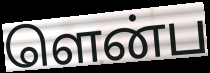
ளென்ப